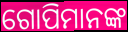
ଗୋପିମାନଙ୍କ